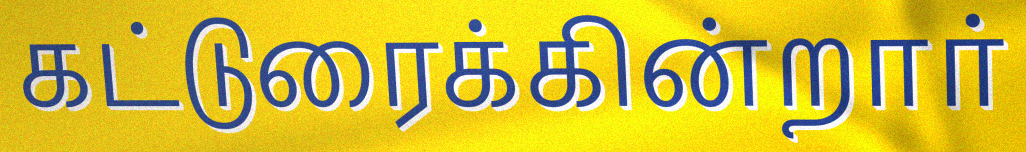
கட்டுரைக்கின்றார்